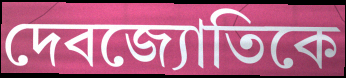
দেবজ্যোতিকে